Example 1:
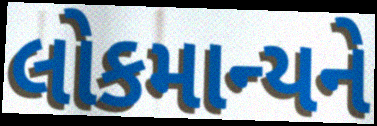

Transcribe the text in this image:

લોકમાન્યને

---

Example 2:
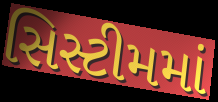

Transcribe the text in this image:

સિસ્ટીમમાં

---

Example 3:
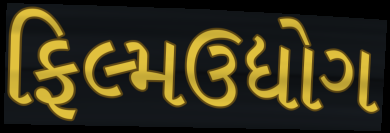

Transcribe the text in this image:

ફિલ્મઉદ્યોગ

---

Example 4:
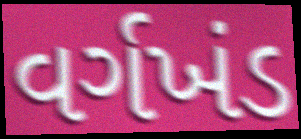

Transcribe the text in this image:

વર્ગખંડ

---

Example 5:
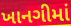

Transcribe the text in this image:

ખાનગીમાં